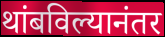
थांबविल्यानंतर